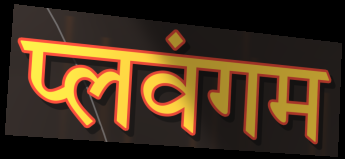
प्लवंगम